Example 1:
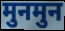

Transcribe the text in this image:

मुनमुन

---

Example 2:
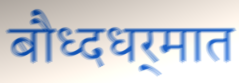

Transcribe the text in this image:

बौध्दधर्मात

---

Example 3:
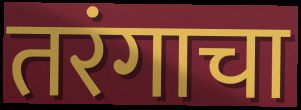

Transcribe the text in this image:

तरंगाचा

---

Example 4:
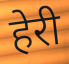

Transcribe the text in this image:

हेरी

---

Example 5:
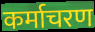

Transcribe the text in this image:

कर्माचरण